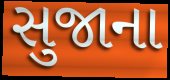
સુજાના